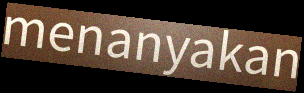
menanyakan